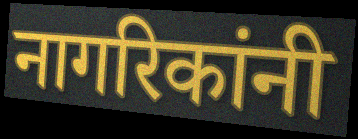
नागरिकांनी